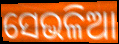
ସେଭଳିଆ